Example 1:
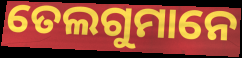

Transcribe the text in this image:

ତେଲଗୁମାନେ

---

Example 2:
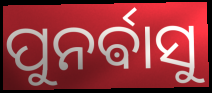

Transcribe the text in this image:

ପୁନର୍ଵାସୁ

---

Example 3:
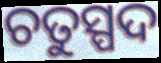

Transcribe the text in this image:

ଚତୁସ୍ପଦ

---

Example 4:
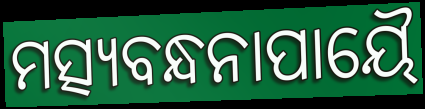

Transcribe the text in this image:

ମତ୍ସ୍ୟବନ୍ଧନାପାୟୈ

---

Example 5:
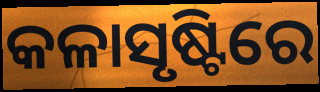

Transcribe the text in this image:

କଳାସୃଷ୍ଟିରେ